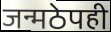
जन्मठेपही